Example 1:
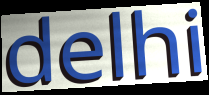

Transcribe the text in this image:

delhi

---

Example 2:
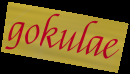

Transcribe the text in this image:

gokulae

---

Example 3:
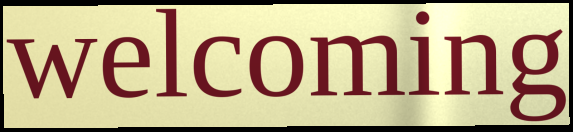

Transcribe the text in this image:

welcoming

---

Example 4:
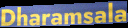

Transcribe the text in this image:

Dharamsala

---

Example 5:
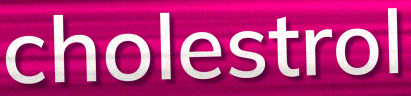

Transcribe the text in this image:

cholestrol